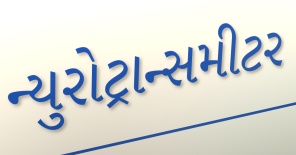
ન્યુરોટ્રાન્સમીટર